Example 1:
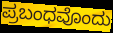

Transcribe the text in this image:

ಪ್ರಬಂಧವೊಂದು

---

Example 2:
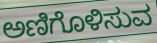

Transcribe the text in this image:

ಅಣಿಗೊಳಿಸುವ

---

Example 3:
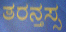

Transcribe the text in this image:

ತರನ್ತಸ್ಸ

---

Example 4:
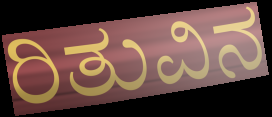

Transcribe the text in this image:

ರಿತುವಿನ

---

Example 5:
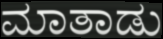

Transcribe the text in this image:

ಮಾತಾಡು